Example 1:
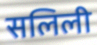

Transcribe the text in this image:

सलिली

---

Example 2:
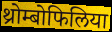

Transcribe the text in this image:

थ्रोम्बोफिलिया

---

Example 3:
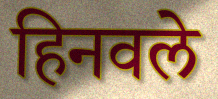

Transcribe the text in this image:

हिनवले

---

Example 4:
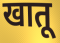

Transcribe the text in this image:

खातू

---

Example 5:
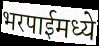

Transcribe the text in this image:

भरपाईमध्ये